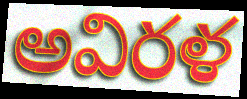
అవిరళ